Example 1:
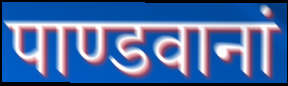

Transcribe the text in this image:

पाण्डवानां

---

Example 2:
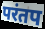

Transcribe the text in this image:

परंतप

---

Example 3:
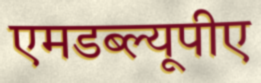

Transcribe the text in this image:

एमडब्ल्यूपीए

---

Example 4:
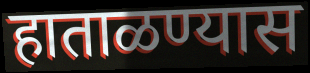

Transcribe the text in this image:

हाताळण्यास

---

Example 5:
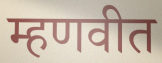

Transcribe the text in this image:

म्हणवीत